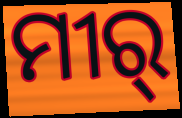
ମୀର୍